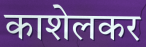
काशेलकर